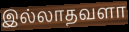
இல்லாதவளா